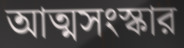
আত্মসংস্কার